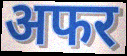
अफर